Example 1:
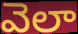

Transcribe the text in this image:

వెలా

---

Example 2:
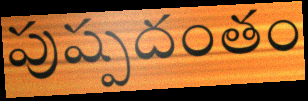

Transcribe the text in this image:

పుష్పదంతం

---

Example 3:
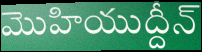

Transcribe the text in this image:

మొహియుద్దీన్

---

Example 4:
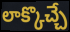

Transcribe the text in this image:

లాక్కొచ్చే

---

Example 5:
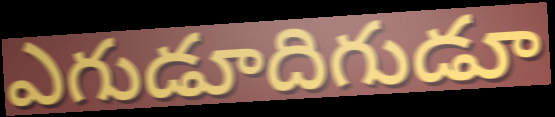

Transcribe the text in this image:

ఎగుడూదిగుడూ